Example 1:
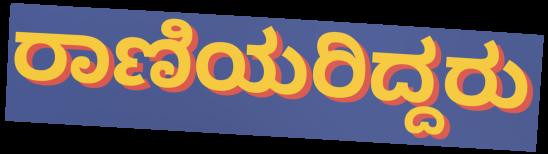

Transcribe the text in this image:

ರಾಣಿಯರಿದ್ದರು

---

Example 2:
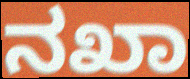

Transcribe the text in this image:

ನಖಾ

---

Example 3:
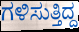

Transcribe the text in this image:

ಗಳಿಸುತ್ತಿದ್ದ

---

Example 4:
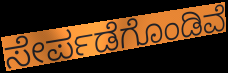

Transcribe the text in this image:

ಸೇರ್ಪಡೆಗೊಂಡಿವೆ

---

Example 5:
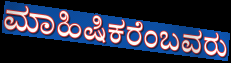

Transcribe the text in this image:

ಮಾಹಿಷಿಕರೆಂಬವರು